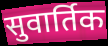
सुवार्तिक